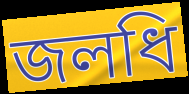
জলধি